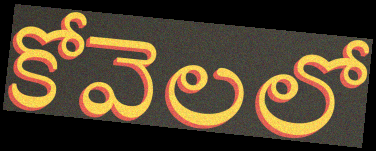
కోవెలలో